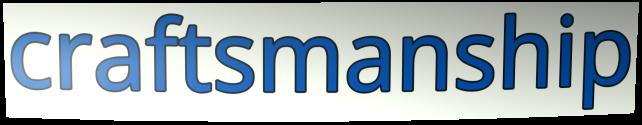
craftsmanship